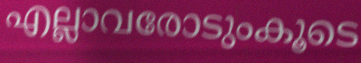
എല്ലാവരോടുംകൂടെ